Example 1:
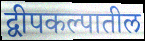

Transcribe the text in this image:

द्वीपकल्पातील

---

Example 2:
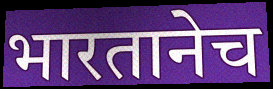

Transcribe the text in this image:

भारतानेच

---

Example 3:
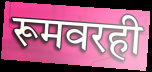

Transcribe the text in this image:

रूमवरही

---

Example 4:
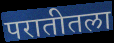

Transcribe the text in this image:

परातीतला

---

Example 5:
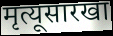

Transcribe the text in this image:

मृत्यूसारखा